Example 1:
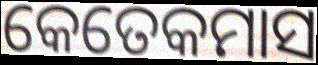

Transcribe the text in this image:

କେତେକମାସ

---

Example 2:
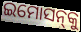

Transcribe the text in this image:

ଇମୋସନ୍‌କୁ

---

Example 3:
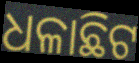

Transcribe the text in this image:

ଧଳାଛିଟ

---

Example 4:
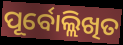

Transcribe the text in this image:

ପୂର୍ବୋଲ୍ଲିଖିତ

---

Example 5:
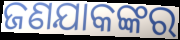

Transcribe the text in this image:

ଜଣଯାକଙ୍କର